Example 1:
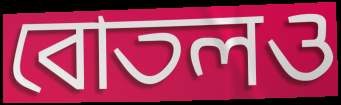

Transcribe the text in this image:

বোতলও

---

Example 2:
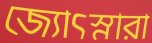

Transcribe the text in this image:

জ্যোৎস্নারা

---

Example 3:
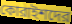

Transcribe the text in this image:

কোরাইশদের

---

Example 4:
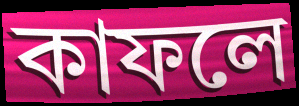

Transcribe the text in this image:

কাফলে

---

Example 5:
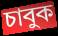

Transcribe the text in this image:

চাবুক